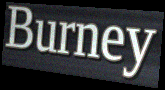
Burney